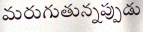
మరుగుతున్నప్పుడు